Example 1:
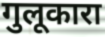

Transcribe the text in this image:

गुलूकारा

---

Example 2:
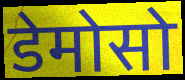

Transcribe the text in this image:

डेमोसो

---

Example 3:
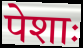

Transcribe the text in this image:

पेशाः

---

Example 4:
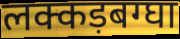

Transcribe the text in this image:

लक्कड़बग्घा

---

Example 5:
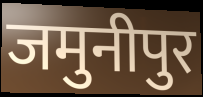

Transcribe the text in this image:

जमुनीपुर